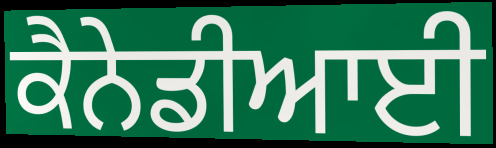
ਕੈਨੇਡੀਆਈ